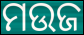
ମଉଜ